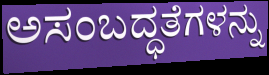
ಅಸಂಬದ್ಧತೆಗಳನ್ನು